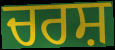
ਚਰਸ਼